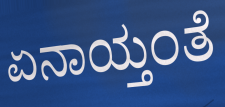
ಏನಾಯ್ತಂತೆ